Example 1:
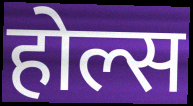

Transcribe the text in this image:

होल्स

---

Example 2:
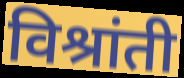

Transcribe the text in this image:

विश्रांती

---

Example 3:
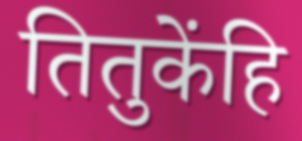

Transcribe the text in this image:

तितुकेंहि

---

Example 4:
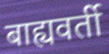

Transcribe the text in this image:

बाह्यवर्ती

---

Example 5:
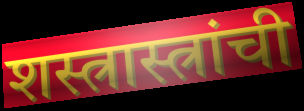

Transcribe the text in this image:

शस्त्रास्त्रांची